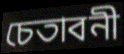
চেতাবনী